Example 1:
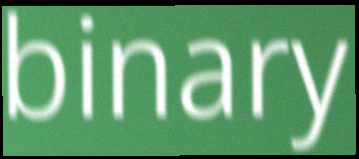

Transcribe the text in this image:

binary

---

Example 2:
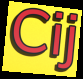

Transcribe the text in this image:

Cij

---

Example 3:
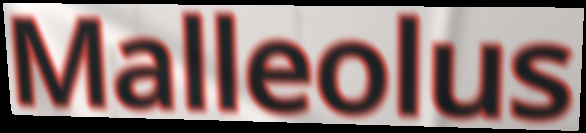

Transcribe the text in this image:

Malleolus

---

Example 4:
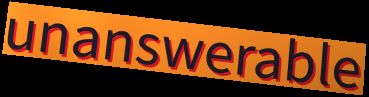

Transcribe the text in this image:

unanswerable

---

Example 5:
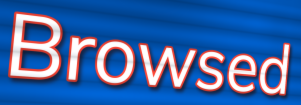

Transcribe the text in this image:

Browsed